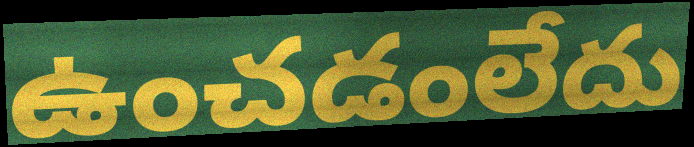
ఉంచడంలేదు